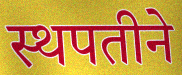
स्थपतीने